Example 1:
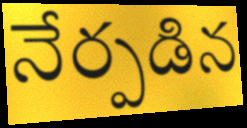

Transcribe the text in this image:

నేర్పడిన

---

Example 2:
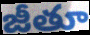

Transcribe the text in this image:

జీతూ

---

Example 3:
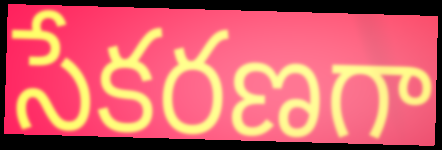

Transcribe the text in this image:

సేకరణగా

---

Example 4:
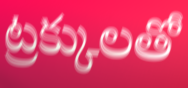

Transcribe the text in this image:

ట్రక్కులతో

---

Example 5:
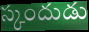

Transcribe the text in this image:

స్కందుడు